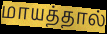
மாயத்தால்